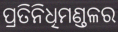
ପ୍ରତିନିଧିମଣ୍ଡଳର